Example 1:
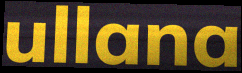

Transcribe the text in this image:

ullana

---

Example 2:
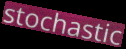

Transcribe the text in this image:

stochastic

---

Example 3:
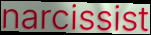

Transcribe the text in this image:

narcissist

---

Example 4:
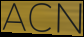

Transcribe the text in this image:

ACN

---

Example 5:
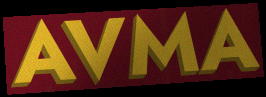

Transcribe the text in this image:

AVMA